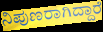
ನಿಪುಣರಾಗಿದ್ದಾರೆ